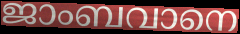
ജാംബവാനെ